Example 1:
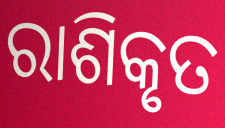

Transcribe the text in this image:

ରାଶିକୃତ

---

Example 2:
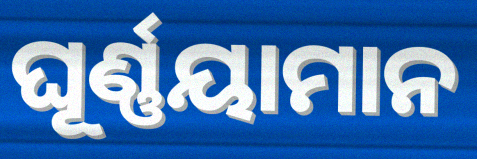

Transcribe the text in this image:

ଘୂର୍ଣ୍ଣୟାମାନ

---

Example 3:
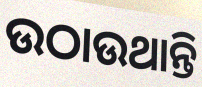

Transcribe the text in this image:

ଉଠାଉଥାନ୍ତି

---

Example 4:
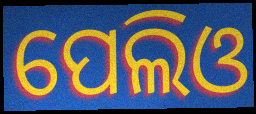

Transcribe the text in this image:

ପେଲିଓ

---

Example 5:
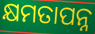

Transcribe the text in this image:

କ୍ଷମତାପନ୍ନ